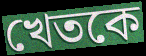
খেতকে